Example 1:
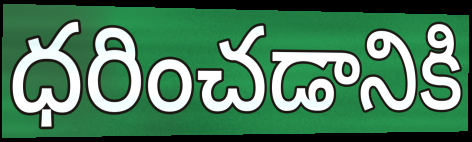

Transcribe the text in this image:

ధరించడానికి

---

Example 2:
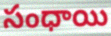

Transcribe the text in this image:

సంధాయి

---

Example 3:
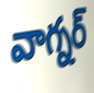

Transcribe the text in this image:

వాగ్నర్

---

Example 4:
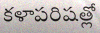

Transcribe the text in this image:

కళాపరిషత్లో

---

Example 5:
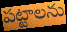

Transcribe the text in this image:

పట్టాలను